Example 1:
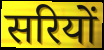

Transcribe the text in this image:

सरियों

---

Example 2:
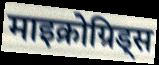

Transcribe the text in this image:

माइक्रोग्रिड्स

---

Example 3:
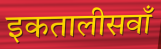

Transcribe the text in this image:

इकतालीसवाँ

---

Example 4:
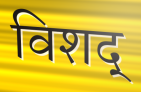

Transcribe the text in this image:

विशद्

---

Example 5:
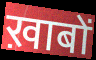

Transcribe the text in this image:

ख़ाबों